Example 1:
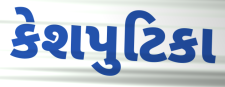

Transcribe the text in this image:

કેશપુટિકા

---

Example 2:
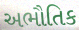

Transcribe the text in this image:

અભૌતિક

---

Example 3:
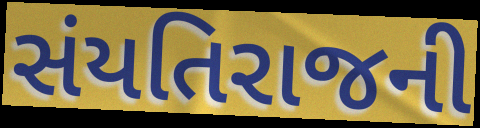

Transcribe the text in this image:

સંયતિરાજની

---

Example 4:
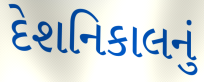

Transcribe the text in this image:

દેશનિકાલનું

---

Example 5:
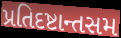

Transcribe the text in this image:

પ્રતિદષ્ટાન્તસમ